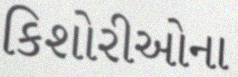
કિશોરીઓના